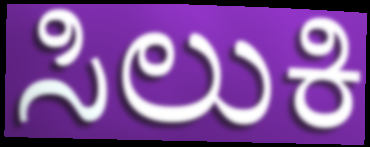
ಸಿಲುಕಿ